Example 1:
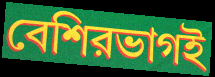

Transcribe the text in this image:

বেশিরভাগই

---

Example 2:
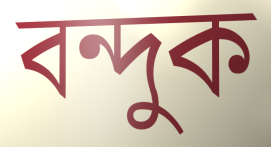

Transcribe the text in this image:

বন্দুক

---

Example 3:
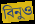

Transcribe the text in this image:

বিনুও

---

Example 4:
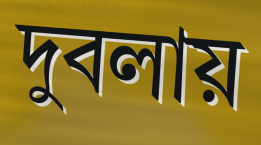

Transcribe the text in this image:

দুবলায়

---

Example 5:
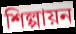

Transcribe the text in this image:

শিল্পায়ন